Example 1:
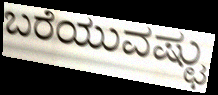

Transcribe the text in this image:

ಬರೆಯುವಷ್ಟು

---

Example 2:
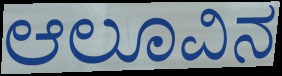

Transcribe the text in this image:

ಆಲೂವಿನ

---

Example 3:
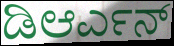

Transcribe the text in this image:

ಡಿಆರ್ಎನ್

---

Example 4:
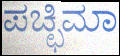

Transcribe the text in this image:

ಪಚ್ಛಿಮಾ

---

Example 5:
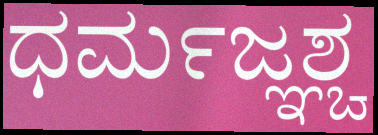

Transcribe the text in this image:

ಧರ್ಮಜ್ಞಶ್ಚ